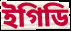
ইগিডি